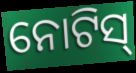
ନୋଟିସ୍